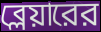
ব্লেয়ারের